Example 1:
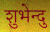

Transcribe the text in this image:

शुभेन्दु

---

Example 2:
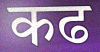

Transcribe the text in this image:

कढ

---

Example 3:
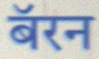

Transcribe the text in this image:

बॅरन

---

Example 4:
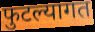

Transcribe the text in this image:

फुटल्यागत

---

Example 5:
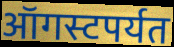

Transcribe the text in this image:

ऑगस्टपर्यत